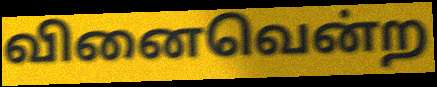
வினைவென்ற